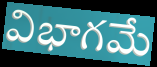
విభాగమే